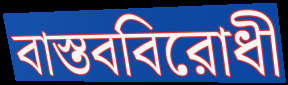
বাস্তববিরোধী